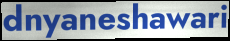
dnyaneshawari